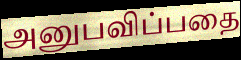
அனுபவிப்பதை